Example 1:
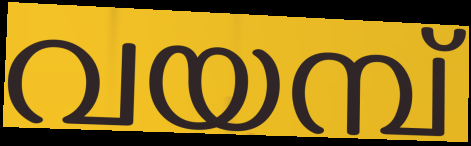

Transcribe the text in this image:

വയമ്പ്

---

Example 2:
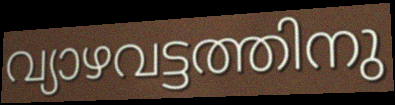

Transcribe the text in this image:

വ്യാഴവട്ടത്തിനു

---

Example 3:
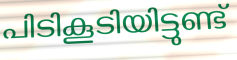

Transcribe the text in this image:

പിടികൂടിയിട്ടുണ്ട്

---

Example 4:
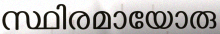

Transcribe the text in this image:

സ്ഥിരമായോരു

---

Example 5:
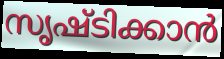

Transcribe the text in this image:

സൃഷ്ടിക്കാൻ